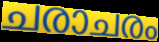
ചരാചരം